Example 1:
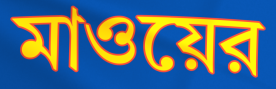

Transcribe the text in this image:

মাওয়ের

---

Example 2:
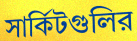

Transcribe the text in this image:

সার্কিটগুলির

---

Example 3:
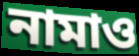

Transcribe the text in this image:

নামাও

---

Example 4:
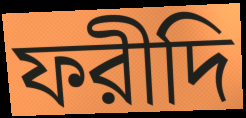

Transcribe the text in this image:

ফরীদি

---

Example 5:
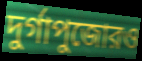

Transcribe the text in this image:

দুর্গাপুজোরও